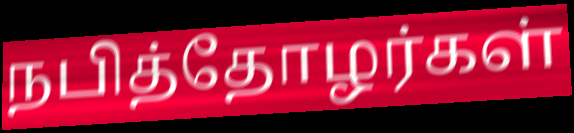
நபித்தோழர்கள்